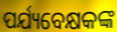
ପର୍ଯ୍ୟବେକ୍ଷକଙ୍କ